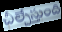
చీల్చేస్తుంది